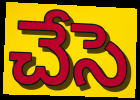
చేసె